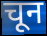
चून